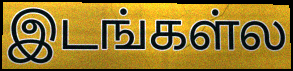
இடங்கள்ல